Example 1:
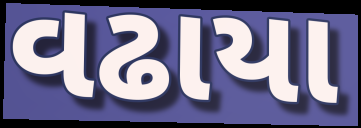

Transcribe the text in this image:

વઢાયા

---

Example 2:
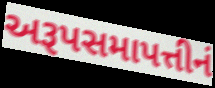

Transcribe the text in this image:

અરૂપસમાપત્તીનં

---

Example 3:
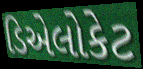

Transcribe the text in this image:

ડિએલોકેટ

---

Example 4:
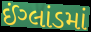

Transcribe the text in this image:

ઈંગ્લાંડમાં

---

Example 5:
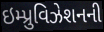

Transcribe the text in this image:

ઇમ્પ્રુવિઝેશનની